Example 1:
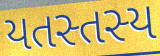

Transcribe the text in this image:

યતસ્તસ્ય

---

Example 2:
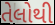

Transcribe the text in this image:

તેલોથી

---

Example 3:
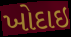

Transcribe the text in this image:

ખોદાઇ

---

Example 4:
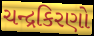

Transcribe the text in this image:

ચન્દ્રકિરણો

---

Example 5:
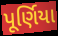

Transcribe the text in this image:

પૂર્ણિયા